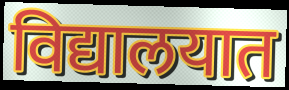
विद्यालयात